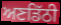
ਅਣਡਿੱਠੀ